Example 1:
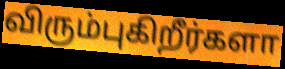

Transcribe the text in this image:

விரும்புகிறீர்களா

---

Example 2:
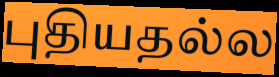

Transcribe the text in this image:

புதியதல்ல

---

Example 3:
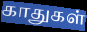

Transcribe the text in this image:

காதுகள்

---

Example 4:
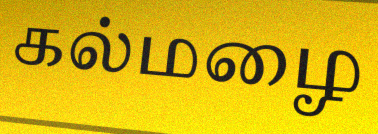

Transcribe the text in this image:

கல்மழை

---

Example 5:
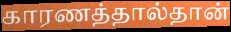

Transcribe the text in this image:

காரணத்தால்தான்